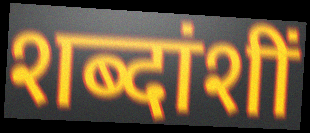
शब्दांशीं